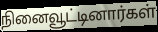
நினைவூட்டினார்கள்